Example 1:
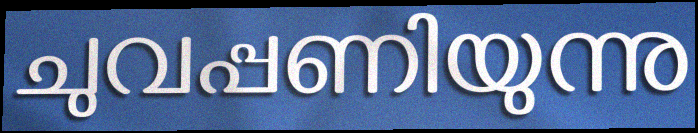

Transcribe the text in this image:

ചുവപ്പണിയുന്നു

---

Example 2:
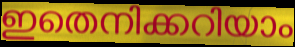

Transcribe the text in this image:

ഇതെനിക്കറിയാം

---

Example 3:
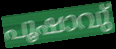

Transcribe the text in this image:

പൂഷാവു്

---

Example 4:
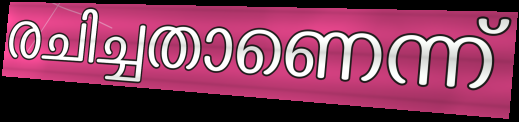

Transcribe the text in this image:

രചിച്ചതാണെന്ന്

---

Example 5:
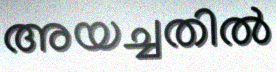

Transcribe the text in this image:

അയച്ചതിൽ